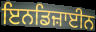
ਇਨਡਿਜ਼ਾਈਨ